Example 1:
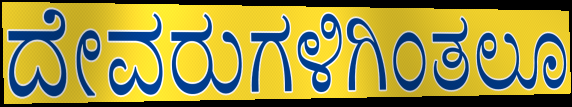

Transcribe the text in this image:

ದೇವರುಗಳಿಗಿಂತಲೂ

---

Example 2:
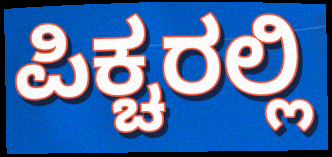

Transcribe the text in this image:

ಪಿಕ್ಚರಲ್ಲಿ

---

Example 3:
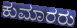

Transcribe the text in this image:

ಕುಮಾರರು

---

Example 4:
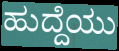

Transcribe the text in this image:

ಹುದ್ದೆಯು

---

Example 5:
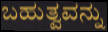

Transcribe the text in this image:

ಬಹುತ್ವವನ್ನು